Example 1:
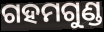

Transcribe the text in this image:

ଗହମଗୁଣ୍ଡ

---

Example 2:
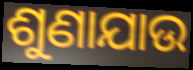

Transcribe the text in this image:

ଶୁଣାଯାଉ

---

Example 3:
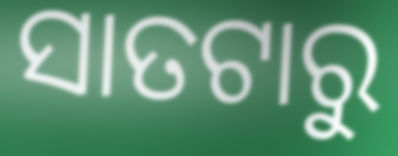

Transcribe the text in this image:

ସାତଟାରୁ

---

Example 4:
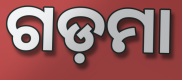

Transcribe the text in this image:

ଗଡ଼ମା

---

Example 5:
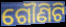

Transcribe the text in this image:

ଗୌଣିଟି